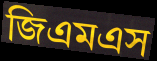
জিএমএস